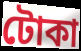
টোকা